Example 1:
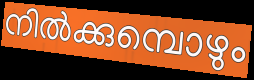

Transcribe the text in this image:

നിൽക്കുമ്പൊഴും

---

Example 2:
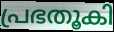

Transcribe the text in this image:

പ്രഭതൂകി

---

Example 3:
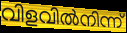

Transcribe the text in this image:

വിളവിൽനിന്ന്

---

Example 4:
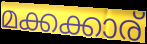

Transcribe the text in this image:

മക്കക്കാര്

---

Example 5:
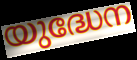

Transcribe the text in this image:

യുദ്ധേന